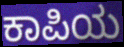
ಕಾಪಿಯ